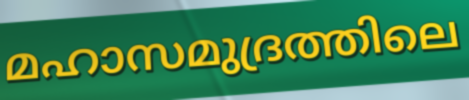
മഹാസമുദ്രത്തിലെ